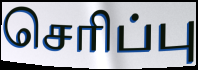
செரிப்பு